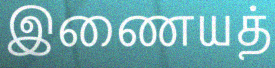
இணையத்